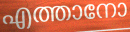
എത്താനോ